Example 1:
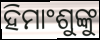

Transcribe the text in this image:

ହିମାଂଶୁଙ୍କୁ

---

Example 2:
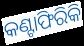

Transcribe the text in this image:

କଣ୍ଟାଫିରିକି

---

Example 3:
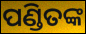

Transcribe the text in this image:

ପଣ୍ଡିତଙ୍କ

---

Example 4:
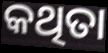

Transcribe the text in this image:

କଥିତା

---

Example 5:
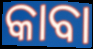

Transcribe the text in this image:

କାବା